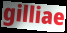
gilliae